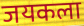
जयकला